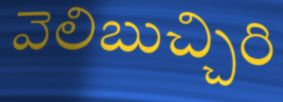
వెలిబుచ్చిరి